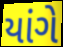
યાંગે